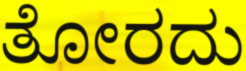
ತೋರದು